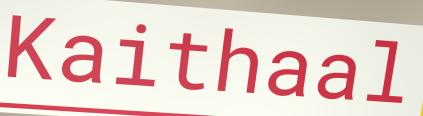
Kaithaal